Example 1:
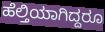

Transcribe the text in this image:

ಹೆಲ್ತಿಯಾಗಿದ್ದರೂ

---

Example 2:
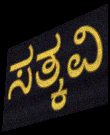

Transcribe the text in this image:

ಸತ್ಕವಿ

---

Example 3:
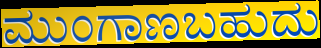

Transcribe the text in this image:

ಮುಂಗಾಣಬಹುದು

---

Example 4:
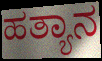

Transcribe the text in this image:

ಹತ್ಯಾನ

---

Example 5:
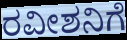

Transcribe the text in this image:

ರವೀಶನಿಗೆ